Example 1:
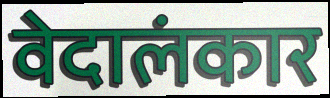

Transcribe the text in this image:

वेदालंकार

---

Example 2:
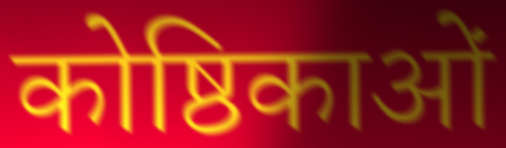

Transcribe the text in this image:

कोष्ठिकाओं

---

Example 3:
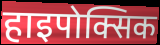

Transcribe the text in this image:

हाइपोक्सिक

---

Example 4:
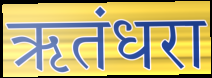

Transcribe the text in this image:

ऋतंधरा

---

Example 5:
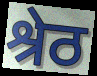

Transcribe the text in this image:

श्रेठ